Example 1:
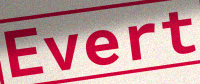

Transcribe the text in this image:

Evert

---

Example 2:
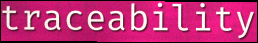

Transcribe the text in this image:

traceability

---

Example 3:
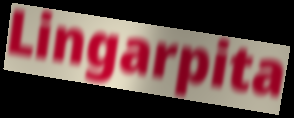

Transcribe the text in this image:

Lingarpita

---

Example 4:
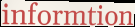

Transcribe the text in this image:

informtion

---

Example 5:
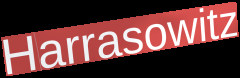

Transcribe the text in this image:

Harrasowitz